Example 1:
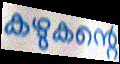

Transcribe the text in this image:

കഴുകന്റെ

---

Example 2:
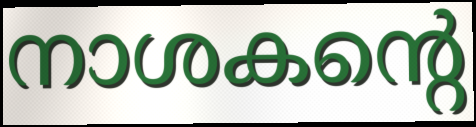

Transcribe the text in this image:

നാശകന്റെ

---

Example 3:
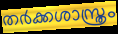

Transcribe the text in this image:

തർക്കശാസ്ത്രം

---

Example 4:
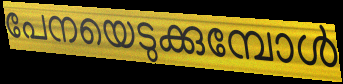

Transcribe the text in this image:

പേനയെടുക്കുമ്പോൾ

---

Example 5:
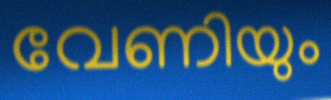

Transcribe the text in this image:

വേണിയും